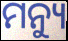
ମନ୍ୟୁ